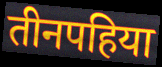
तीनपहिया